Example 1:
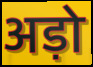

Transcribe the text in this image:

अड़ो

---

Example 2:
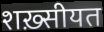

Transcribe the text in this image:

शख़्सीयत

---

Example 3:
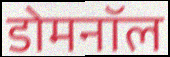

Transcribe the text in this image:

डोमनॉल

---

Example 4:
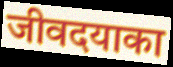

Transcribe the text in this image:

जीवदयाका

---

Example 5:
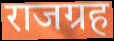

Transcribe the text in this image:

राजग्रह